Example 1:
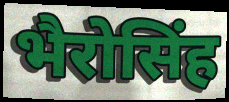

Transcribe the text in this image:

भैरोसिंह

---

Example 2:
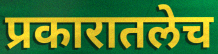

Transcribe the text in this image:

प्रकारातलेच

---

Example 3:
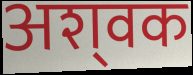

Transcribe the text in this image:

अश्वक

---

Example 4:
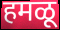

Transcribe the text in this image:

हमळू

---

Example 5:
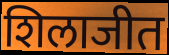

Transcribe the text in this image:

शिलाजीत